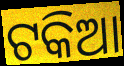
ଟକିଆ